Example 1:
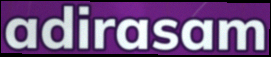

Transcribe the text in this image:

adirasam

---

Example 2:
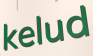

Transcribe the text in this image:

kelud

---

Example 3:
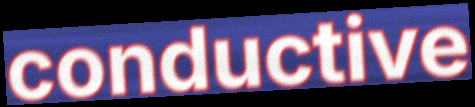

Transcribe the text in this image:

conductive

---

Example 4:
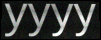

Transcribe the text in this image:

yyyy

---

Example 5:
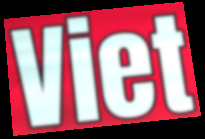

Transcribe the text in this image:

Viet